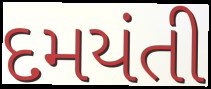
દમયંતી